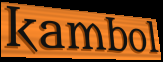
kambol